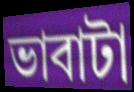
ভাবাটা